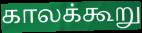
காலக்கூறு